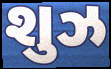
શુઝ